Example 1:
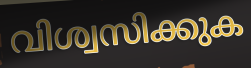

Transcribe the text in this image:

വിശ്വസിക്കുക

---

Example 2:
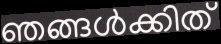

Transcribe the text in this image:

ഞങ്ങൾക്കിത്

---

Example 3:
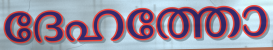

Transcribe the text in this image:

ദേഹത്തോ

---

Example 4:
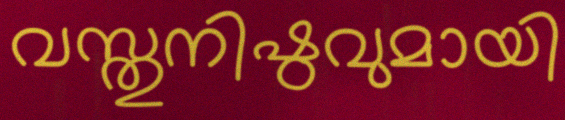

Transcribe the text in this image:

വസ്തുനിഷ്ഠവുമായി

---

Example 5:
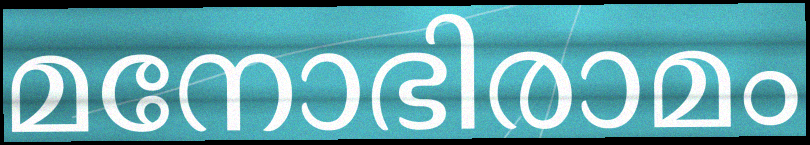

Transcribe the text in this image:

മനോഭിരാമം